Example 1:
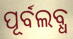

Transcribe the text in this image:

ପୂର୍ବଲବ୍ଧ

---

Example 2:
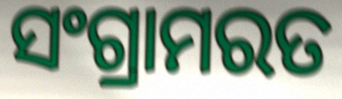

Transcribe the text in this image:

ସଂଗ୍ରାମରତ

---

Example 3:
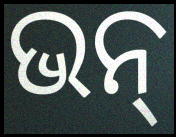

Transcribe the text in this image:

ଭନ୍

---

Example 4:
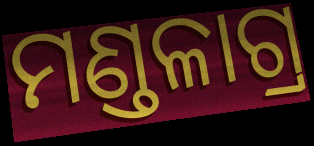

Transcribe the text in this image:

ମଣ୍ଡଳାଗ୍ର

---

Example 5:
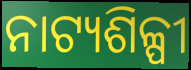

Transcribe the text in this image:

ନାଟ୍ୟଶିଳ୍ପୀ